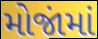
મોજાંમાં